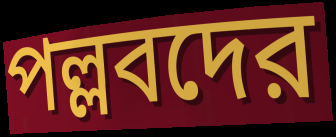
পল্লবদের